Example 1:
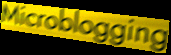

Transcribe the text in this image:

Microblogging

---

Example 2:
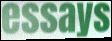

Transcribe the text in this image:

essays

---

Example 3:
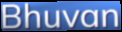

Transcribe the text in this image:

Bhuvan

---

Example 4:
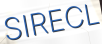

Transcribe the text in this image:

SIRECL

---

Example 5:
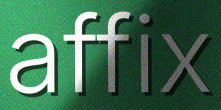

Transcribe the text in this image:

affix